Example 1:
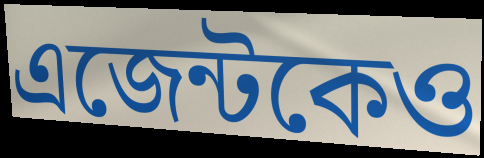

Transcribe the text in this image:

এজেন্টকেও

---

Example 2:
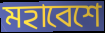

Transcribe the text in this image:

মহাবেশে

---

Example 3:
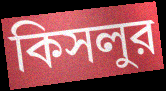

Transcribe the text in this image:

কিসলুর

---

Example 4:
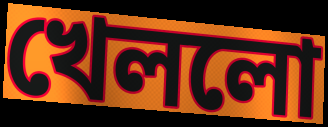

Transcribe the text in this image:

খেললো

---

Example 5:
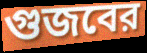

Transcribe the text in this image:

গুজবের